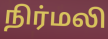
நிர்மலி